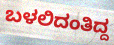
ಬಳಲಿದಂತಿದ್ದ